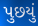
પુછયું